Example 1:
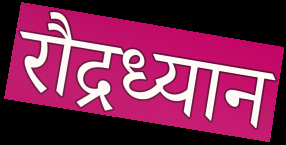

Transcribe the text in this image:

रौद्रध्यान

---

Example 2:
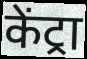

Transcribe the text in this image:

केंट्रा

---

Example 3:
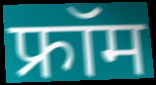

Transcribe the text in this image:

फ्रॉम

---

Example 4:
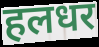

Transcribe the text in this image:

हलधर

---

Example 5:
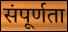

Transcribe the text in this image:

संपूर्णता